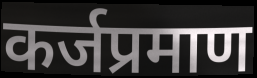
कर्जप्रमाण